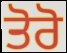
ਤੋਰੋ